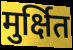
मुर्क्षित